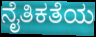
ನೈತಿಕತೆಯ